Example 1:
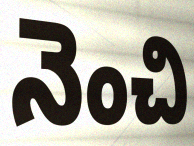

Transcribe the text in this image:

నెంచి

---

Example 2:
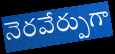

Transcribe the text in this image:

నెరవేర్పుగా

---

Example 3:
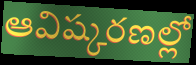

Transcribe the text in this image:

ఆవిష్కరణల్లో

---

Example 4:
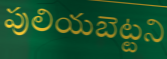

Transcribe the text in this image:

పులియబెట్టని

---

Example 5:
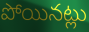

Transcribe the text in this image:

పోయినట్లు